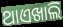
ଥାଏଖାଲି